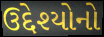
ઉદ્દેશ્યોનો